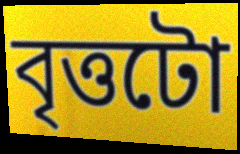
বৃত্তটো